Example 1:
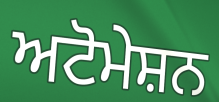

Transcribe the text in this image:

ਅਟੋਮੇਸ਼ਨ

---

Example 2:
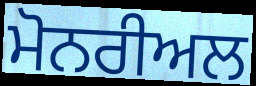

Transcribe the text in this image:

ਮੋਨਰੀਅਲ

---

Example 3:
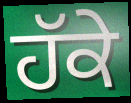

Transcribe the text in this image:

ਹੱਕੇ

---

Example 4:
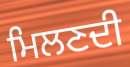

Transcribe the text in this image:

ਮਿਲਣਦੀ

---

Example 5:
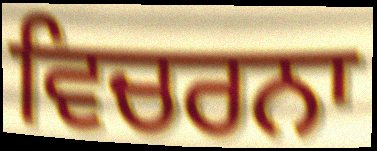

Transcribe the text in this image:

ਵਿਚਰਨਾ